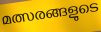
മത്സരങ്ങളുടെ